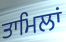
ਤਾਮਿਲਾਂ